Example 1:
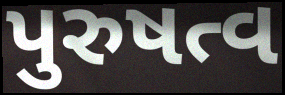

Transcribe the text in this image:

પુરુષત્વ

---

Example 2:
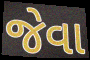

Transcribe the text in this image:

જેવા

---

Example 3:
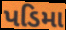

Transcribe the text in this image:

પડિમા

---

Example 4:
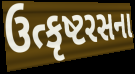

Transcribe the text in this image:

ઉત્કૃષ્ટરસના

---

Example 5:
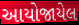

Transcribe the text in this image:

આયોજાયેલ